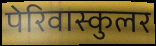
पेरिवास्कुलर